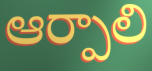
ఆర్పాలి